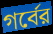
গর্বের